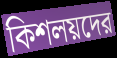
কিশলয়দের